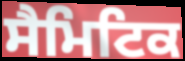
ਸੈਮਿਟਿਕ